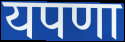
यपणा